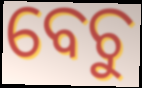
ବେଚୁ